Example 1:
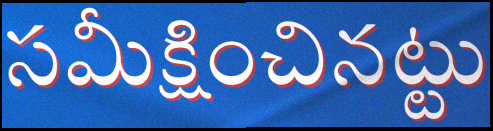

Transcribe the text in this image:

సమీక్షించినట్టు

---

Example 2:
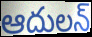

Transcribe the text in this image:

ఆదులన్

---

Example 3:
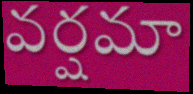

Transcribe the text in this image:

వర్షమా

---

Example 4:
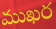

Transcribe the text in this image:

ముఖర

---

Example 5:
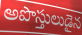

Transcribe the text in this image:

అపొస్తులుడైన